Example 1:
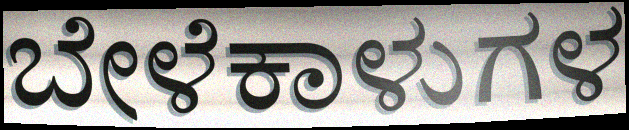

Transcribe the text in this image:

ಬೇಳೆಕಾಳುಗಳ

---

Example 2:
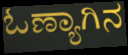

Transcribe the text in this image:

ಓಣ್ಯಾಗಿನ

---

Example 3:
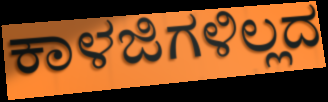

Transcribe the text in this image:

ಕಾಳಜಿಗಳಿಲ್ಲದ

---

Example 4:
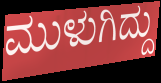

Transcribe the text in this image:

ಮುಳುಗಿದ್ದು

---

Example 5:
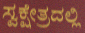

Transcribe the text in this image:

ಸ್ವಕ್ಷೇತ್ರದಲ್ಲಿ